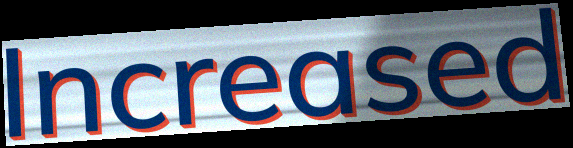
Increased